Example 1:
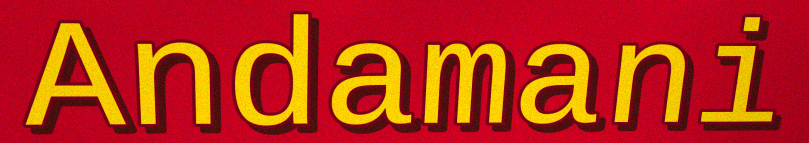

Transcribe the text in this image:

Andamani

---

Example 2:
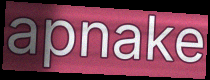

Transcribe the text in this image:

apnake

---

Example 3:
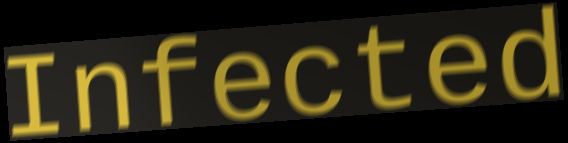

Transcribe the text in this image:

Infected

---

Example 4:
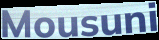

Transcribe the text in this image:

Mousuni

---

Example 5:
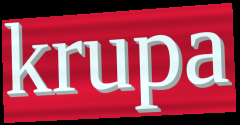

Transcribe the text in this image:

krupa